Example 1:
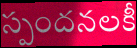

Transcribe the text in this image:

స్పందనలకీ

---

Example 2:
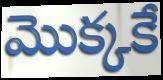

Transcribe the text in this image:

మొక్కకే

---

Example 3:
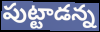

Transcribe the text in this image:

పుట్టాడన్న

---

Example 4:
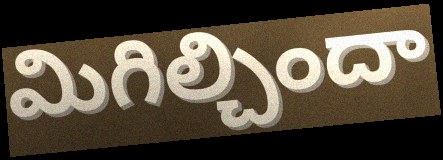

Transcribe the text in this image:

మిగిల్చిందా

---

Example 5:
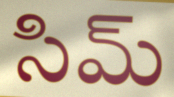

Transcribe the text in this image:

సిమ్